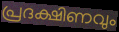
പ്രദക്ഷിണവും